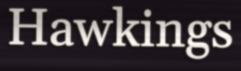
Hawkings